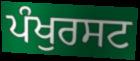
ਪੰਖੁਰਸਟ